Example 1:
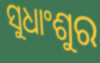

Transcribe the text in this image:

ସୁଧାଂଶୁର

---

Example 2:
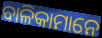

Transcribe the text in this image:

ବାଳିକାମାନେ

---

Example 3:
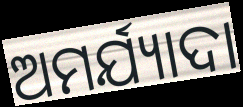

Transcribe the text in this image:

ଅମର୍ଯ୍ୟାଦା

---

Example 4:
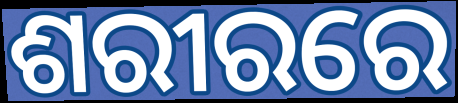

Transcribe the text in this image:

ଶରୀରରେ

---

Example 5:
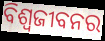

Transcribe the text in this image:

ବିଶ୍ଵଜୀବନର